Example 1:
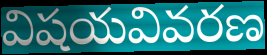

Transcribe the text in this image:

విషయవివరణ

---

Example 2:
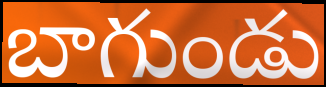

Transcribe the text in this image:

బాగుండు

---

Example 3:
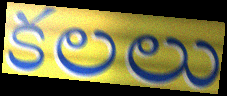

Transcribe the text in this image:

కలలు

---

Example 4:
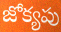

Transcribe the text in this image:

జోక్యపు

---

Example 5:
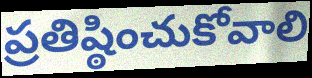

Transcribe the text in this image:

ప్రతిష్ఠించుకోవాలి